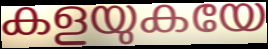
കളയുകയേ